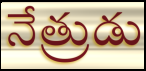
నేత్రుడు